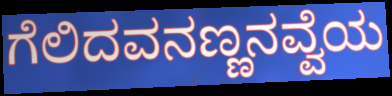
ಗೆಲಿದವನಣ್ಣನವ್ವೆಯ